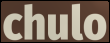
chulo